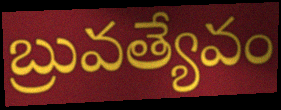
బ్రువత్యేవం